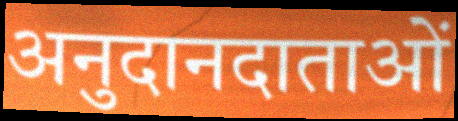
अनुदानदाताओं